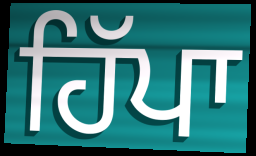
ਹਿੱਪਾ